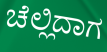
ಚೆಲ್ಲಿದಾಗ